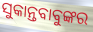
ସୁକାନ୍ତବାବୁଙ୍କର